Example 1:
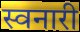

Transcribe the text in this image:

स्वनारी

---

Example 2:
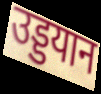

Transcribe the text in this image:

उड्डयान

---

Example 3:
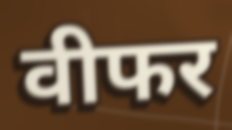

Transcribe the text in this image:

वीफर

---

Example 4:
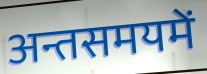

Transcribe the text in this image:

अन्तसमयमें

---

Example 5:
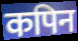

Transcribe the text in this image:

कपिन